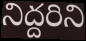
నిద్దరిని